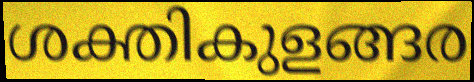
ശക്തികുളങ്ങര